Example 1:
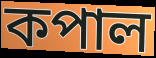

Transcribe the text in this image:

কপাল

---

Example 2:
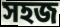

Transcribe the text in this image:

সহজ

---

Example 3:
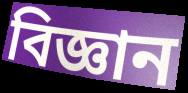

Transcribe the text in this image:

বিজ্ঞান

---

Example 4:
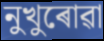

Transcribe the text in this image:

নুখুৰোৱা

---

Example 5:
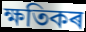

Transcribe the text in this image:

ক্ষতিকৰ